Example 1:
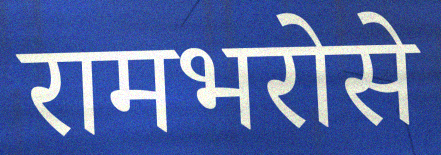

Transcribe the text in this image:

रामभरोसे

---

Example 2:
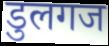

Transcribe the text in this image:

डुलगज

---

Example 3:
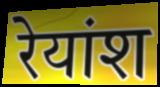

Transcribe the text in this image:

रेयांश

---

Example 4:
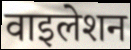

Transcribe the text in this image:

वाइलेशन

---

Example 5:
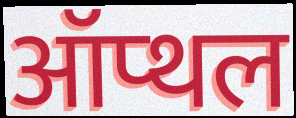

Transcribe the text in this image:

ऑप्थल